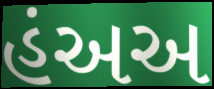
હંઅઅ